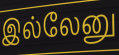
இல்லேனு